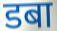
डबा